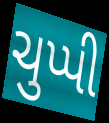
ચુપ્પી